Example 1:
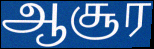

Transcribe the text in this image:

ஆசூர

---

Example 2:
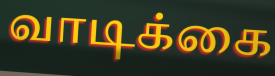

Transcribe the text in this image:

வாடிக்கை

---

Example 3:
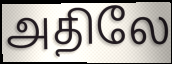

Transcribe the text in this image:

அதிலே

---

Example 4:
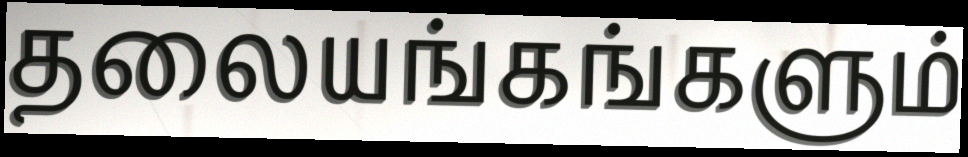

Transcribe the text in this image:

தலையங்கங்களும்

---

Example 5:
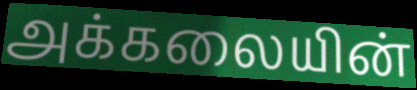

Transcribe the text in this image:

அக்கலையின்